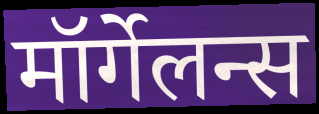
मॉर्गेलन्स